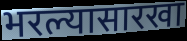
भरल्यासारखा